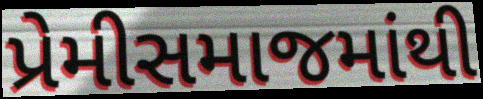
પ્રેમીસમાજમાંથી